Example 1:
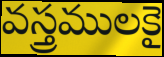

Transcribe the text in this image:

వస్త్రములకై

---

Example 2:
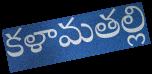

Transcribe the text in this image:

కళామతల్లి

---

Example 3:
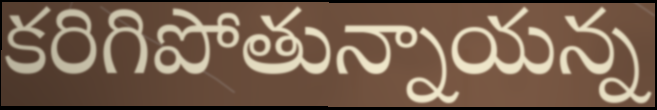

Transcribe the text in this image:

కరిగిపోతున్నాయన్న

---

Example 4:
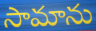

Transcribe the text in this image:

సామాను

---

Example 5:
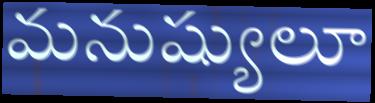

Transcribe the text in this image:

మనుష్యులూ